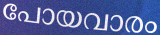
പോയവാരം